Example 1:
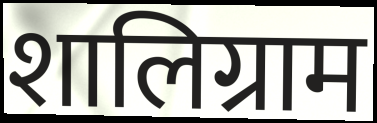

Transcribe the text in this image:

शालिग्राम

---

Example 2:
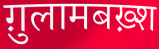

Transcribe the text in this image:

ग़ुलामबख़्श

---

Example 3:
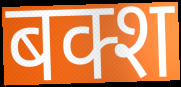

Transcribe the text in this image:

बक्श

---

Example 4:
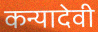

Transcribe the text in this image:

कन्यादेवी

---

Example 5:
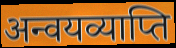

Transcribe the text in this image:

अन्वयव्याप्ति